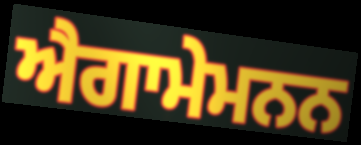
ਐਗਾਮੇਮਨਨ